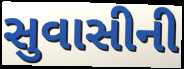
સુવાસીની